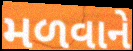
મળવાને